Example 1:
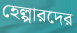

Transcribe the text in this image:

হেল্পারদের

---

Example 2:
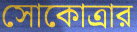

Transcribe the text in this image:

সোকোত্রার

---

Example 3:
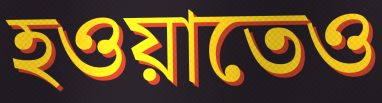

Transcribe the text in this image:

হওয়াতেও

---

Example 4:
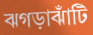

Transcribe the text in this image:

ঝগড়াঝাঁটি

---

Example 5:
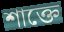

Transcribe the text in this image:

শাক্তে